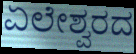
ಏಲೇಶ್ವರದ